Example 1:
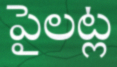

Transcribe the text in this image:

పైలట్ల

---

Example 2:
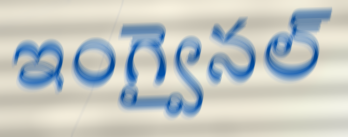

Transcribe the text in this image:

ఇంగ్వైనల్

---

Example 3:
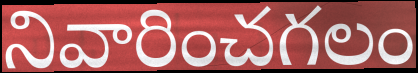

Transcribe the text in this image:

నివారించగలం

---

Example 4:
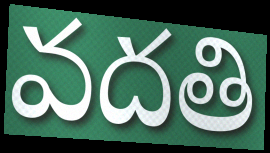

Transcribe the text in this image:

వదతి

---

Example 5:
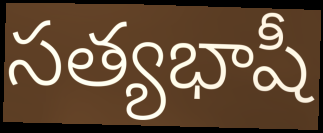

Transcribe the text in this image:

సత్యభాషీ